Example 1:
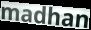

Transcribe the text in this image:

madhan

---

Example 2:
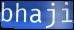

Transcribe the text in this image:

bhaji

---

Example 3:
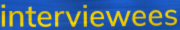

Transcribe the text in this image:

interviewees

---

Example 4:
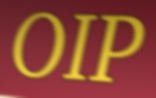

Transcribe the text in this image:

OIP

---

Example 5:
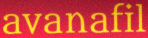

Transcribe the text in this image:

avanafil